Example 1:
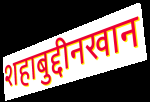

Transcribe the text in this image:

शहाबुद्दीनखान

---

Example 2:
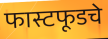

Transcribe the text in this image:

फास्टफूडचे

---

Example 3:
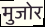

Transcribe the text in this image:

मुजोर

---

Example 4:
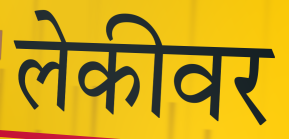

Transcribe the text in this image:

लेकीवर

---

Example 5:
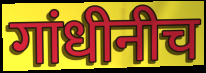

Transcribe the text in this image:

गांधीनीच